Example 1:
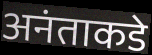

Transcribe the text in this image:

अनंताकडे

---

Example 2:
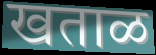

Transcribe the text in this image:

खताळ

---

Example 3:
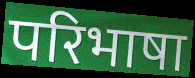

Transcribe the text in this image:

परिभाषा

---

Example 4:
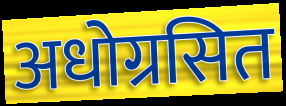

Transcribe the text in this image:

अधोग्रसित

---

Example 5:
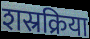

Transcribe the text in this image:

शस्रक्रिया